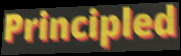
Principled